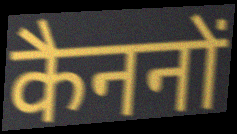
कैननों